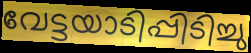
വേട്ടയാടിപ്പിടിച്ചു